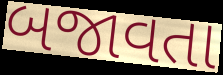
બજાવતા